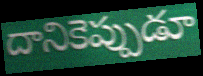
దానికెప్పుడూ